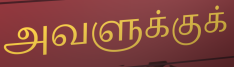
அவளுக்குக்